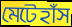
মেটেহাঁস